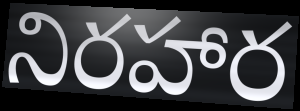
నిరహార